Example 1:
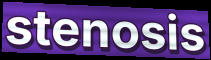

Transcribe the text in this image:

stenosis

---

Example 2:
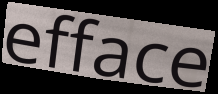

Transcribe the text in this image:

efface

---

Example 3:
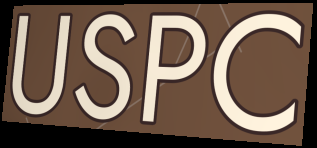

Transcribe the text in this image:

USPC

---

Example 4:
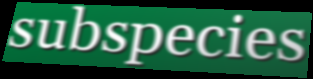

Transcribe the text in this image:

subspecies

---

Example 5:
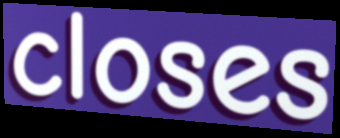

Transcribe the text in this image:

closes